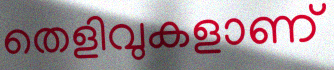
തെളിവുകളാണ്